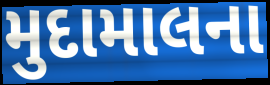
મુદામાલના